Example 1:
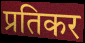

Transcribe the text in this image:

प्रतिकर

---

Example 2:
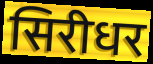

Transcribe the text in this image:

सिरीधर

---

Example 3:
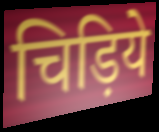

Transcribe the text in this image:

चिड़िये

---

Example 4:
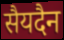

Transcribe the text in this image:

सैयदैन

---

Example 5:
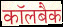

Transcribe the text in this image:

कॉलबैक